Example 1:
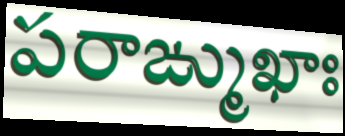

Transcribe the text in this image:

పరాఙ్ముఖాః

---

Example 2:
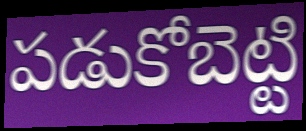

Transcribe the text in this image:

పడుకోబెట్టి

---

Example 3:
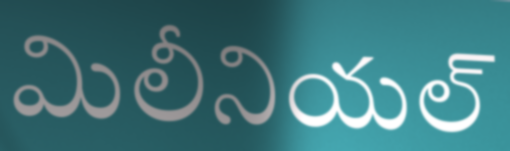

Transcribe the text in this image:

మిలీనియల్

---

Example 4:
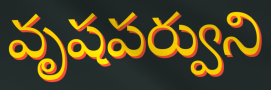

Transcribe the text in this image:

వృషపర్వుని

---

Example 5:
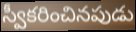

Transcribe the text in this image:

స్వీకరించినపుడు